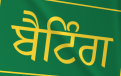
ਬੈਟਿੰਗ